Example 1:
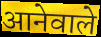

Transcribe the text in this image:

आनेवाले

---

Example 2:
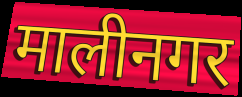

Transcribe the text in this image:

मालीनगर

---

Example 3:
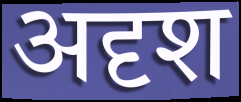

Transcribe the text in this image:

अदृश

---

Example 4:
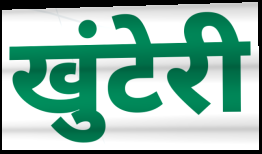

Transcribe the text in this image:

खुंटेरी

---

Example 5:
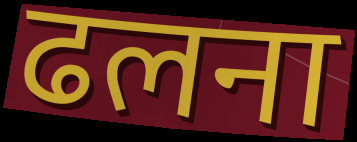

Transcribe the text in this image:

ढलना